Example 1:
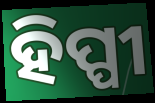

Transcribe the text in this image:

ହିପ୍ପୀ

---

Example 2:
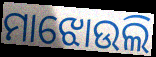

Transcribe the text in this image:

ମାଝୋଉଲି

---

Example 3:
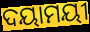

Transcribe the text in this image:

ଦୟାମୟୀ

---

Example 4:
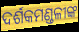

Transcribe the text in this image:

ଦର୍ଶକମଣ୍ଡଳୀଙ୍କ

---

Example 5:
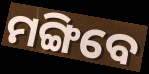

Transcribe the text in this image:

ମଙ୍ଗିବେ